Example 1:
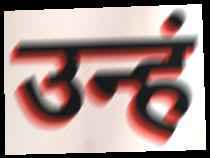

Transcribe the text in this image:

उन्हं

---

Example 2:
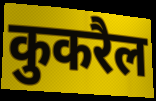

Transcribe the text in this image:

कुकरैल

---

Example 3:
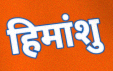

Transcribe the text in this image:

हिमांशु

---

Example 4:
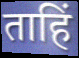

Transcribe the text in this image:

ताहिं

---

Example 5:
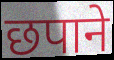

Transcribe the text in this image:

छपाने